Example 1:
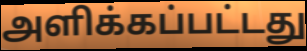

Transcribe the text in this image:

அளிக்கப்பட்டது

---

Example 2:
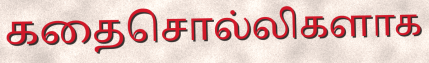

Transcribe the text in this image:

கதைசொல்லிகளாக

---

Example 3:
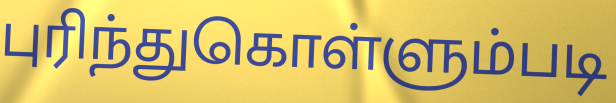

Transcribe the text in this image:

புரிந்துகொள்ளும்படி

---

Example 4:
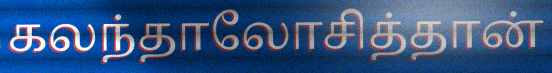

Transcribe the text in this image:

கலந்தாலோசித்தான்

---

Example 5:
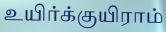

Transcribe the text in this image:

உயிர்க்குயிராம்